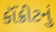
કૉંક્રીટનું